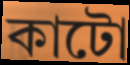
কাটো